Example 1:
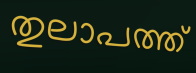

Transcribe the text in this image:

തുലാപത്ത്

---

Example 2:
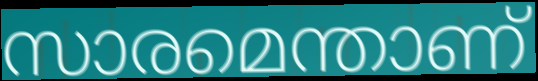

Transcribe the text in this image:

സാരമെന്താണ്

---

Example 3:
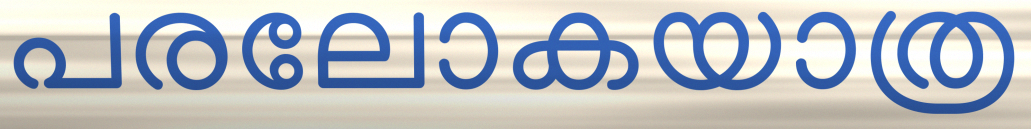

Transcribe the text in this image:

പരലോകയാത്ര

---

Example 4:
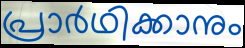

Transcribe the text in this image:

പ്രാർഥിക്കാനും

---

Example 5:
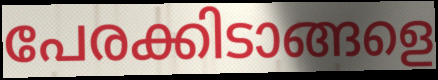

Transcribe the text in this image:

പേരക്കിടാങ്ങളെ